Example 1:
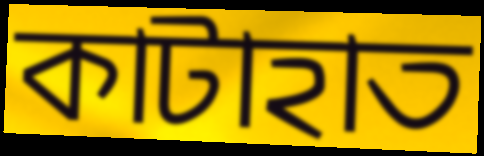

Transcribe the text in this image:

কাটাহাত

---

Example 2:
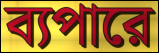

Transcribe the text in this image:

ব্যপারে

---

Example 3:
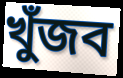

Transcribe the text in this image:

খুঁজব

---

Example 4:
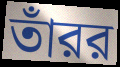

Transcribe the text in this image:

তাঁরর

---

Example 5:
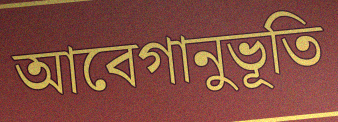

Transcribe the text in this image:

আবেগানুভূতি